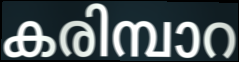
കരിമ്പാറ